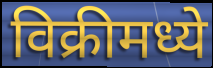
विक्रीमध्ये